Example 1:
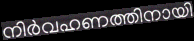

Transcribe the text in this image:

നിർവഹണത്തിനായി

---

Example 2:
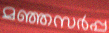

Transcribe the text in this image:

മഞ്ഞസർപ്പ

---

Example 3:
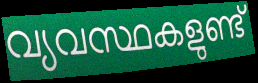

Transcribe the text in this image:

വ്യവസ്ഥകളുണ്ട്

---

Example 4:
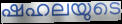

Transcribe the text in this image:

ഷഹലയുടെ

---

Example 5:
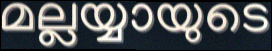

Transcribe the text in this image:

മല്ലയ്യായുടെ